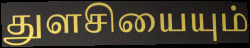
துளசியையும்